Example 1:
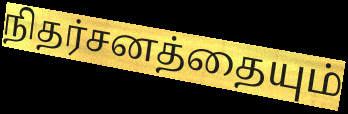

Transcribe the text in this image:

நிதர்சனத்தையும்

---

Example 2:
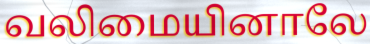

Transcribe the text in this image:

வலிமையினாலே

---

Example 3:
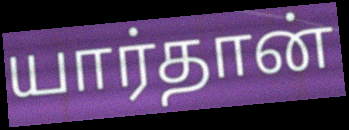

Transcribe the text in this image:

யார்தான்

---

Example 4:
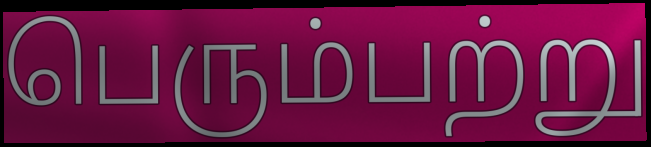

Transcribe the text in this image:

பெரும்பற்று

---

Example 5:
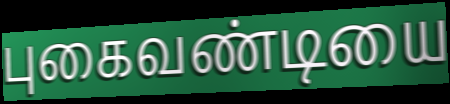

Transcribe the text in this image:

புகைவண்டியை